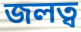
জলত্ব